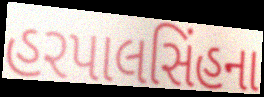
હરપાલસિંહના